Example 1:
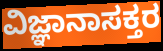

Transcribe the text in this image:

ವಿಜ್ಞಾನಾಸಕ್ತರ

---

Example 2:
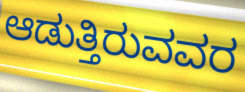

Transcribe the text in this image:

ಆಡುತ್ತಿರುವವರ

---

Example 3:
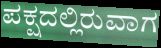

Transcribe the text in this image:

ಪಕ್ಷದಲ್ಲಿರುವಾಗ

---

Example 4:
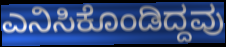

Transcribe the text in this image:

ಎನಿಸಿಕೊಂಡಿದ್ದವು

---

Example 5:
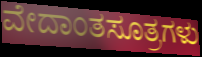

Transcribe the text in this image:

ವೇದಾಂತಸೂತ್ರಗಳು